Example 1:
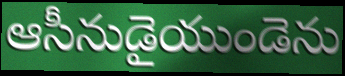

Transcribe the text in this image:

ఆసీనుడైయుండెను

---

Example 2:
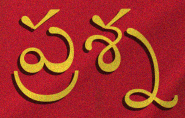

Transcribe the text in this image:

ప్రశ్న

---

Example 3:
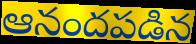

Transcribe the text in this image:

ఆనందపడిన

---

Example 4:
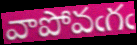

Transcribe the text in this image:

వాపోవఁగఁ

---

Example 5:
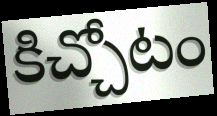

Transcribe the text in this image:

కిచ్చోటం